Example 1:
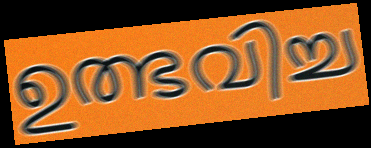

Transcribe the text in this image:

ഉത്ഭവിച്ച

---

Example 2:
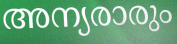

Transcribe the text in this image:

അന്യരാരും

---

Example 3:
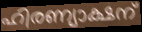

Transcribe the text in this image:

ഹിരണ്യാക്ഷന്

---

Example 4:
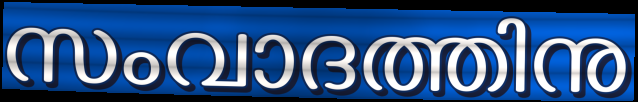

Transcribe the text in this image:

സംവാദത്തിനു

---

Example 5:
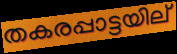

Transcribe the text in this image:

തകരപ്പാട്ടയില്